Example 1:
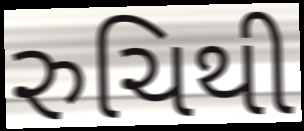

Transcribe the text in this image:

રુચિથી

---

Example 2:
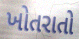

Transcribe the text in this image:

ખોતરાતો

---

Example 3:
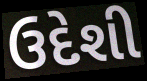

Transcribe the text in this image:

ઉદેશી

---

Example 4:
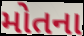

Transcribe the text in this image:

મોતના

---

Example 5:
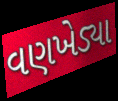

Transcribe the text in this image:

વણખેડ્યા